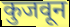
कुजवून